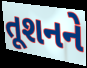
તૂશનને